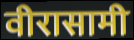
वीरासामी